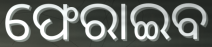
ଫେରାଇବ